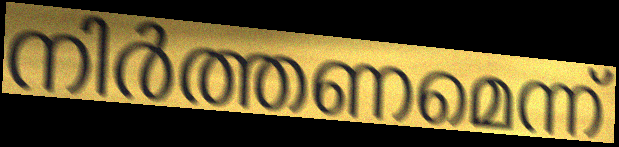
നിർത്തണമെന്ന്